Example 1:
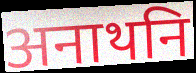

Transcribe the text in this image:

अनाथनि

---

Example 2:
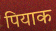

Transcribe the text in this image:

पियाक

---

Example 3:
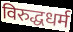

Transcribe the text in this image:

विरुद्धधर्म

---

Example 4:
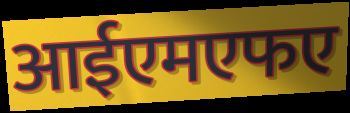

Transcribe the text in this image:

आईएमएफए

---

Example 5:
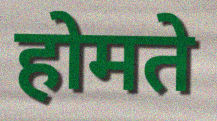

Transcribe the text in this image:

होमते